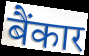
बैंकार